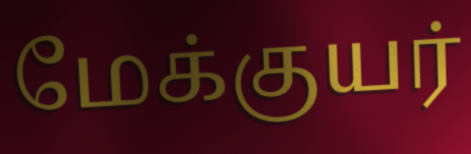
மேக்குயர்